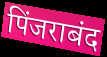
पिंजराबंद